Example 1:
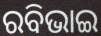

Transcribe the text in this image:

ରବିଭାଇ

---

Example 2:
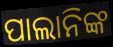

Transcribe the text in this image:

ପାଲାନିଙ୍କ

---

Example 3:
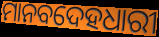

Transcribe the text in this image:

ମାନବଦେହଧାରୀ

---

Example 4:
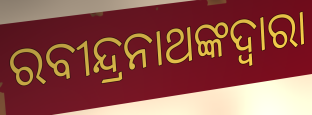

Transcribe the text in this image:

ରବୀନ୍ଦ୍ରନାଥଙ୍କଦ୍ୱାରା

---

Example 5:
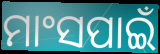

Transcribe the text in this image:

ମାଂସପାଇଁ